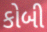
કોબી